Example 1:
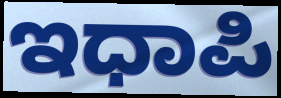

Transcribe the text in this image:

ಇಧಾಪಿ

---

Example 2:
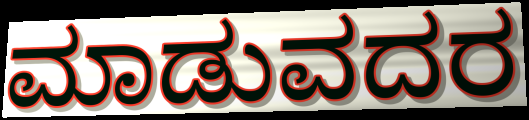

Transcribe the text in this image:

ಮಾಡುವದರ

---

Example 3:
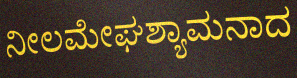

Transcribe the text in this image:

ನೀಲಮೇಘಶ್ಯಾಮನಾದ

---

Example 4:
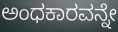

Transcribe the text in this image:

ಅಂಧಕಾರವನ್ನೇ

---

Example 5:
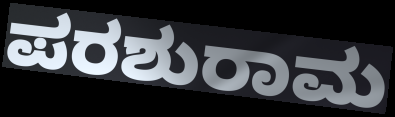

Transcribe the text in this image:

ಪರಶುರಾಮ